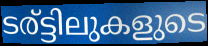
ടര്ട്ടിലുകളുടെ